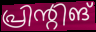
പ്രിന്റിങ്